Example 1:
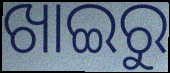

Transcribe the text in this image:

ଖାଇରୁ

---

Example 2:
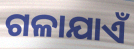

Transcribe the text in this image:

ଗଳାଯାଏଁ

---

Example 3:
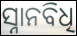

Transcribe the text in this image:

ସ୍ନାନବିଧି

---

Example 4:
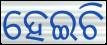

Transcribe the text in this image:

ହେଇଚି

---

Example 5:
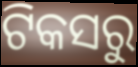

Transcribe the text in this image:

ଟିକସରୁ